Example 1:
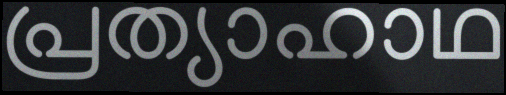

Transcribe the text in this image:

പ്രത്യാഹാഥ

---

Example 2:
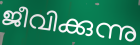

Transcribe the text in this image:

ജീവിക്കുന്നു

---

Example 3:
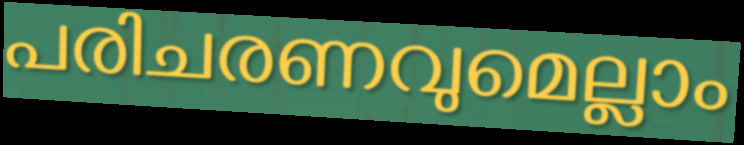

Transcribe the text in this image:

പരിചരണവുമെല്ലാം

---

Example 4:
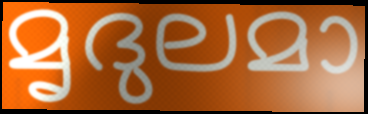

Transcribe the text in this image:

മൃദുലമാ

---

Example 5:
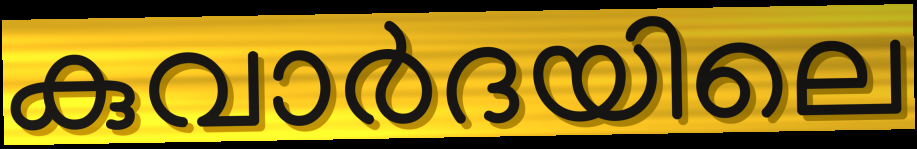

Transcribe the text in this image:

കുവാർദയിലെ